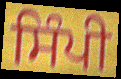
ਸਿੰਪੀ